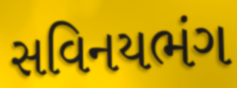
સવિનયભંગ